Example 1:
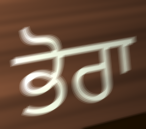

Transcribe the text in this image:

ਭੋਰਾ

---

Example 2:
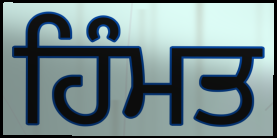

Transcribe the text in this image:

ਹਿੰਮਤ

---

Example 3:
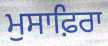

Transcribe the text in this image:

ਮੁਸਾਫ਼ਿਰਾ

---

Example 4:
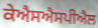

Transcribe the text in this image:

ਕੇਐਸਐਸਪੀਐਲ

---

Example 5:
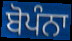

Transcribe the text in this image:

ਬੋਪੰਨਾ